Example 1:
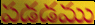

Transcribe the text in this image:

పడడము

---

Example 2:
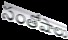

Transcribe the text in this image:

సంతోషాలు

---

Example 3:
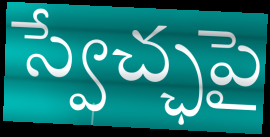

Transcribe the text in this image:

స్వేచ్ఛపై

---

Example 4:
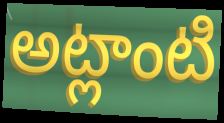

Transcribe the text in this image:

అట్లాంటి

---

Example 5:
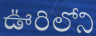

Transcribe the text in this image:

ఊరిలోని